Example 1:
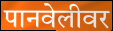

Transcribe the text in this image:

पानवेलीवर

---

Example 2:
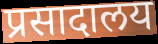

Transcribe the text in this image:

प्रसादालय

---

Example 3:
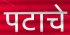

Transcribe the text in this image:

पटाचे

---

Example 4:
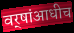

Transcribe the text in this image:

वर्षांआधीच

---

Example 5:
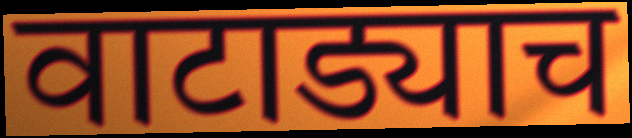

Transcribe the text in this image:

वाटाड्याच